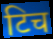
टिच